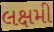
લક્ષમી